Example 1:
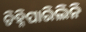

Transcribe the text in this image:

ଚିହ୍ନିପାରିଲିନି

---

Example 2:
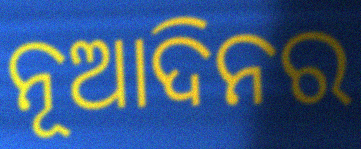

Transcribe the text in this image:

ନୂଆଦିନର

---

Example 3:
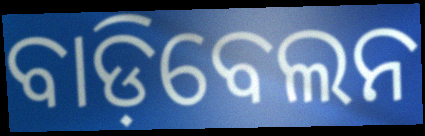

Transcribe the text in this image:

ବାଡ଼ିବେଲନ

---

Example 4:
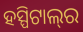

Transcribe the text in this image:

ହସ୍ପିଟାଲ୍‌ର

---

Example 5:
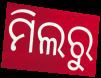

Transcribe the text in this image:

ମିଲରୁ